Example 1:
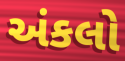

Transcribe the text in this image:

અંકલો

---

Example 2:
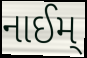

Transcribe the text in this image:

નાઈમ્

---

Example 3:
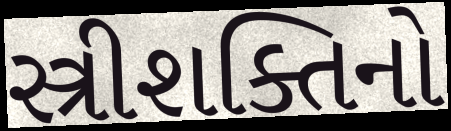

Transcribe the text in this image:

સ્ત્રીશક્તિનો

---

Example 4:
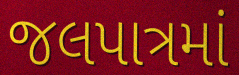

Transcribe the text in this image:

જલપાત્રમાં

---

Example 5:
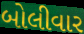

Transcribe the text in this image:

બોલીવાર